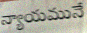
న్యాయమునే